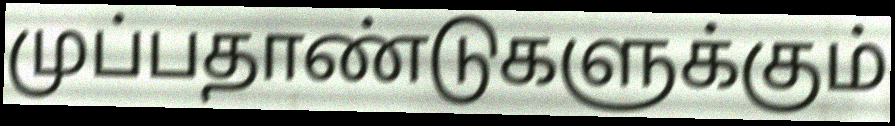
முப்பதாண்டுகளுக்கும்